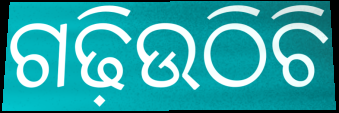
ଗଢ଼ିଉଠିଚି